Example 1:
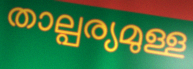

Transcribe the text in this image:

താല്പര്യമുള്ള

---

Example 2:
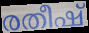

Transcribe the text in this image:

രതീഷ്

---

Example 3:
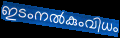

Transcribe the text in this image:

ഇടംനൽകുംവിധം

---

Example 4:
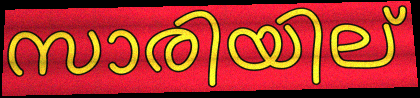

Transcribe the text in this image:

സാരിയില്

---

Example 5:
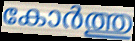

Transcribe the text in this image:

കോർത്തു